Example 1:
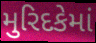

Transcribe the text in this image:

મુરિદકેમાં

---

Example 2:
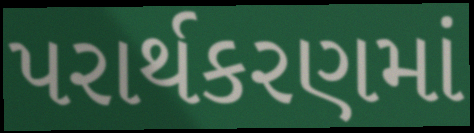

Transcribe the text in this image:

પરાર્થકરણમાં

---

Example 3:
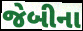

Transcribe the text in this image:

જેબીના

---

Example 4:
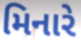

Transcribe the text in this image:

મિનારે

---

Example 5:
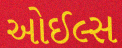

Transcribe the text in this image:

ઓઈલ્સ